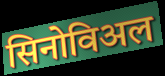
सिनोविअल